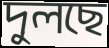
দুলছে